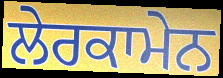
ਲੇਰਕਾਮੇਨ